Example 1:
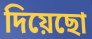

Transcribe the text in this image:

দিয়েছো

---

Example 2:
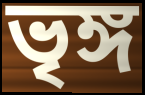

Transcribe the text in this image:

ভৃঙ্গ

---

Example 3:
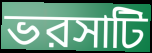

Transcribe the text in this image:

ভরসাটি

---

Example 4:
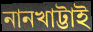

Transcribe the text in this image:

নানখাট্টাই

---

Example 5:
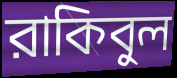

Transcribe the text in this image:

রাকিবুল